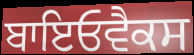
ਬਾਇਓਵੈਕਸ